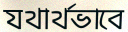
যথার্থভাবে